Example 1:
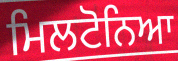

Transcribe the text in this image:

ਮਿਲਟੋਨਿਆ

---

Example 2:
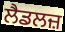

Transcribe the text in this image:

ਲੈਡਲਜ਼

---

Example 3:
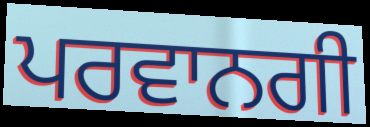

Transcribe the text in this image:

ਪਰਵਾਨਗੀ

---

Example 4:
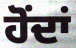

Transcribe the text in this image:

ਹੋਂਦਾਂ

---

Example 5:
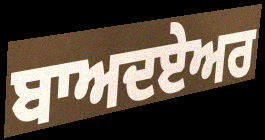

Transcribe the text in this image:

ਬਾਅਦਏਅਰ